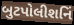
બુટપોલીશનિં